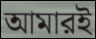
আমারই